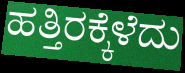
ಹತ್ತಿರಕ್ಕೆಳೆದು